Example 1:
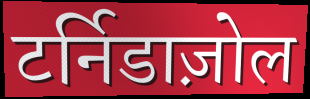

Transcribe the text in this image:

टर्निडाज़ोल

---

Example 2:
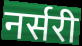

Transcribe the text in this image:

नर्सरी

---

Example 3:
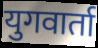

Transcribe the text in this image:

युगवार्ता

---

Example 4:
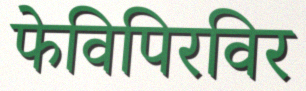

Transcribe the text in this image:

फेविपिरविर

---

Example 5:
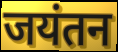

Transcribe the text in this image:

जयंतन